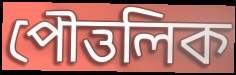
পৌত্তলিক